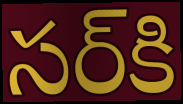
సర్‌కి